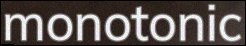
monotonic